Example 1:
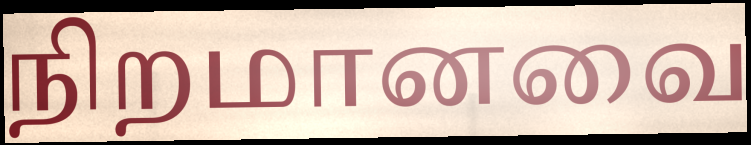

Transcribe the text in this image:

நிறமானவை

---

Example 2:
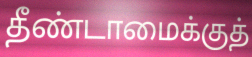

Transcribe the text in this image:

தீண்டாமைக்குத்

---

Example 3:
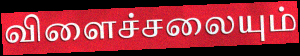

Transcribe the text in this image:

விளைச்சலையும்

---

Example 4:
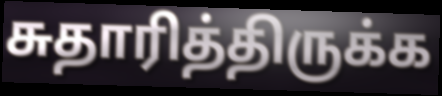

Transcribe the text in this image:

சுதாரித்திருக்க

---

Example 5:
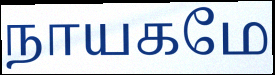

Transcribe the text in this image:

நாயகமே